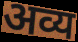
अव्य